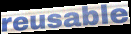
reusable